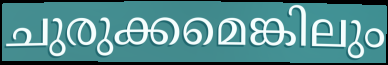
ചുരുക്കമെങ്കിലും